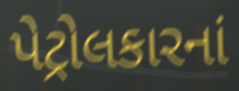
પેટ્રોલકારનાં